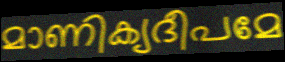
മാണിക്യദീപമേ